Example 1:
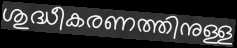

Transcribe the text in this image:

ശുദ്ധീകരണത്തിനുള്ള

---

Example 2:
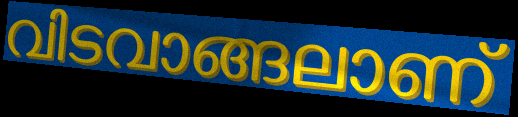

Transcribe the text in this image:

വിടവാങ്ങലാണ്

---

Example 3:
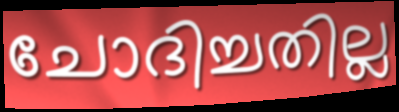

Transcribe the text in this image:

ചോദിച്ചതില്ല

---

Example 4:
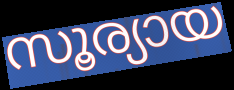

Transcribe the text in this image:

സൂര്യായ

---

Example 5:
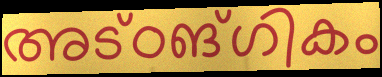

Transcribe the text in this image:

അട്ഠങ്ഗികം